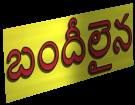
బందీలైన